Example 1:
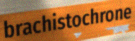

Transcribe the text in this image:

brachistochrone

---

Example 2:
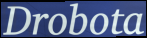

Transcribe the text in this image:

Drobota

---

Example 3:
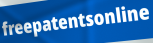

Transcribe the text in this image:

freepatentsonline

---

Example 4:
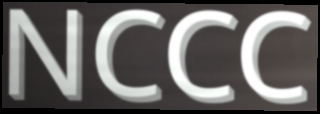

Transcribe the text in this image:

NCCC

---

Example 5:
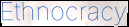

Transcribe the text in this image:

Ethnocracy